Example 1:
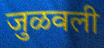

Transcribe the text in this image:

जुळवली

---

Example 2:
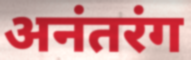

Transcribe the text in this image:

अनंतरंग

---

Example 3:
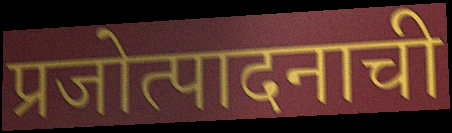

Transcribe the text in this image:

प्रजोत्पादनाची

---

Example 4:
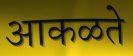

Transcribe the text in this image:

आकळते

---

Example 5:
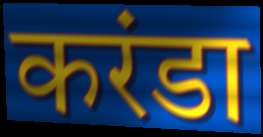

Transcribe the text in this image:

करंडा